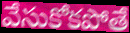
వేసుకోకపోతే